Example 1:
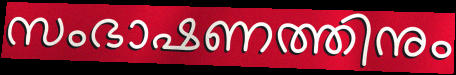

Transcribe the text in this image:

സംഭാഷണത്തിനും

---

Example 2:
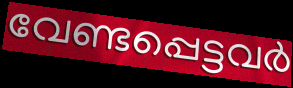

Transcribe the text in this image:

വേണ്ടപ്പെട്ടവർ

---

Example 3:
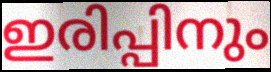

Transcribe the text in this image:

ഇരിപ്പിനും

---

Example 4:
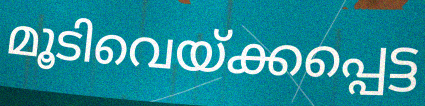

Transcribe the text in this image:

മൂടിവെയ്ക്കപ്പെട്ട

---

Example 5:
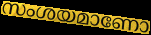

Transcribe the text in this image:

സംശയമാണോ